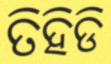
ତିହିଡି